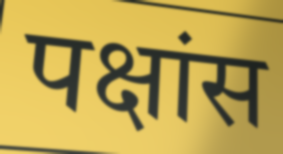
पक्षांस